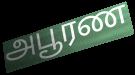
அபூரண